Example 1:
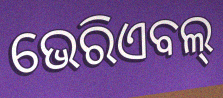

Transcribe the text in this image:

ଭେରିଏବଲ୍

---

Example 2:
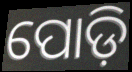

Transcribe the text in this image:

ପୋଡ଼ି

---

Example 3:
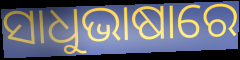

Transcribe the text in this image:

ସାଧୁଭାଷାରେ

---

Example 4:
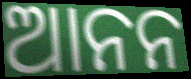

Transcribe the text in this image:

ଆନନ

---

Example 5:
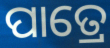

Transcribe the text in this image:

ପାତ୍ରେ